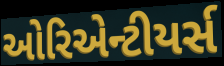
ઓરિએન્ટીયર્સ